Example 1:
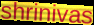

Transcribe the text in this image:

shrinivas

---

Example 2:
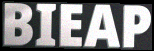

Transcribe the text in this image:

BIEAP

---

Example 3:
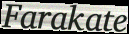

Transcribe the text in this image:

Farakate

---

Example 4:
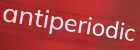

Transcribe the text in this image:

antiperiodic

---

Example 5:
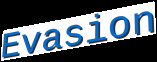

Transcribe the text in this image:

Evasion